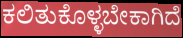
ಕಲಿತುಕೊಳ್ಳಬೇಕಾಗಿದೆ